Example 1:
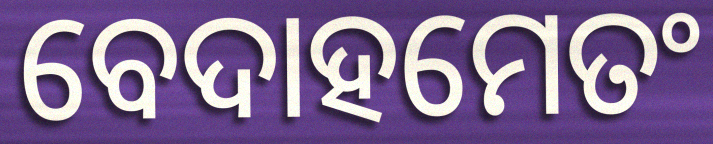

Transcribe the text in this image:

ବେଦାହମେତଂ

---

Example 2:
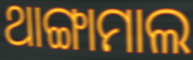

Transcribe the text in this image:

ଥାଙ୍ଗାମାଲ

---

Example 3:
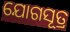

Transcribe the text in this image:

ଯୋଗସୂତ୍ର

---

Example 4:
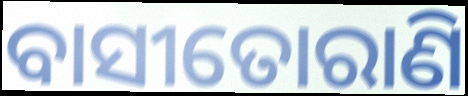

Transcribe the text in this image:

ବାସୀତୋରାଣି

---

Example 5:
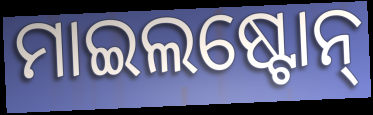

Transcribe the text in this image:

ମାଇଲଷ୍ଟୋନ୍